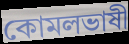
কোমলভাষী